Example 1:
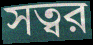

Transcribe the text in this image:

সত্বর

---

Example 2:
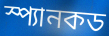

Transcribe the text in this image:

স্প্যানকড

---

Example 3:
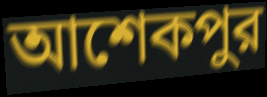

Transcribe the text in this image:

আশেকপুর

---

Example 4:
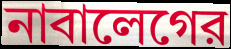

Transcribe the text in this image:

নাবালেগের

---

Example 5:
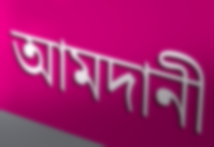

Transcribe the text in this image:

আমদানী